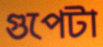
গুপেটা